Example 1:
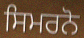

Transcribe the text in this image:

ਸਿਮਰਨੋ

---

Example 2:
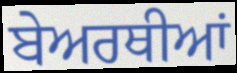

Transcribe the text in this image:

ਬੇਅਰਥੀਆਂ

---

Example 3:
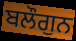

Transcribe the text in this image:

ਬਲੌਗੁਨ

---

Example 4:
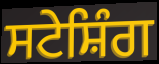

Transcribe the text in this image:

ਸਟੇਸ਼ਿੰਗ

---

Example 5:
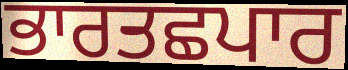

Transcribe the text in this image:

ਭਾਰਤਛਪਾਰ